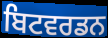
ਬਿਟਵਰਡਨ